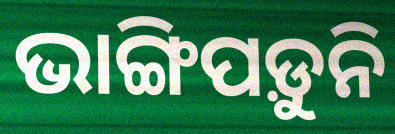
ଭାଙ୍ଗିପଡ଼ୁନି